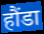
हौंडा